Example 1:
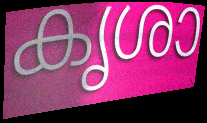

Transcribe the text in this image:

കൃശാ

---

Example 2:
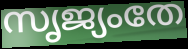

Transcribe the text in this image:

സൃജ്യംതേ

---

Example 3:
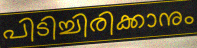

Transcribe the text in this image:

പിടിച്ചിരിക്കാനും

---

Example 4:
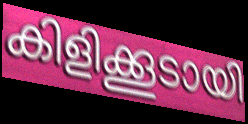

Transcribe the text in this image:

കിളിക്കൂടായി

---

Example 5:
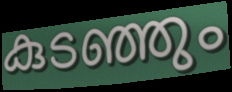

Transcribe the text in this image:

കുടഞ്ഞും